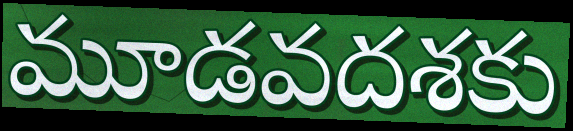
మూడవదశకు